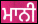
ਮਾਨੀ